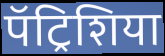
पॅट्रिशिया